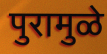
पुरामुळे